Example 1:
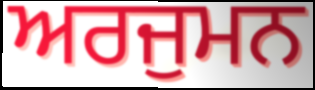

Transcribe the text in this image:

ਅਰਜੁਮਨ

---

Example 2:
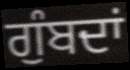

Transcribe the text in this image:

ਗੁੰਬਦਾਂ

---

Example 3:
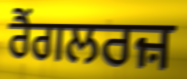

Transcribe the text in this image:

ਰੈਂਗਲਰਜ਼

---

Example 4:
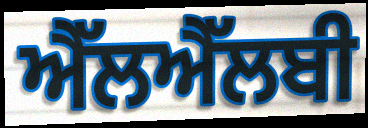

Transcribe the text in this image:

ਐੱਲਐੱਲਬੀ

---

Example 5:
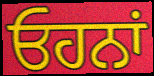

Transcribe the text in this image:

ਓਹਨਾਂ